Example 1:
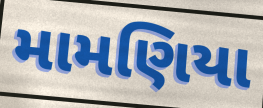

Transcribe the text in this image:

મામણિયા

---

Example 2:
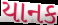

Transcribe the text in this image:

યાનક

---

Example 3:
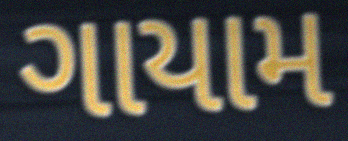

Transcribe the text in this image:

ગાયામ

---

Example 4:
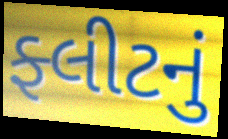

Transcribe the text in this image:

ફ્લીટનું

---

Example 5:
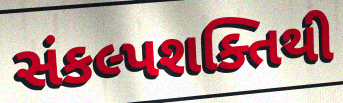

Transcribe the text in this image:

સંકલ્પશક્તિથી